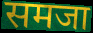
समजा